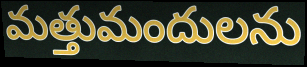
మత్తుమందులను